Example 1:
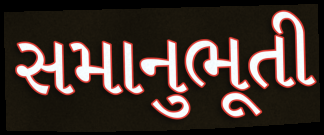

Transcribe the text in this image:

સમાનુભૂતી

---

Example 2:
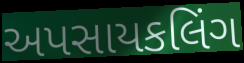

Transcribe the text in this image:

અપસાયકલિંગ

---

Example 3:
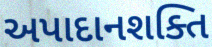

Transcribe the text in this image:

અપાદાનશક્તિ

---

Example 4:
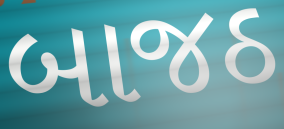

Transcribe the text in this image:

બાજઠ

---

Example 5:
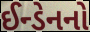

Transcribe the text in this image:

ઈન્ડેનનો